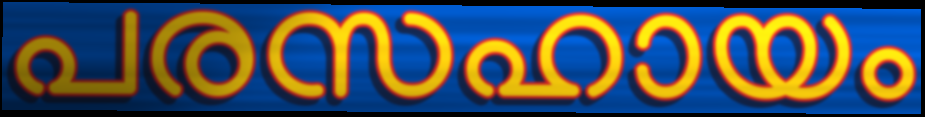
പരസഹായം